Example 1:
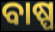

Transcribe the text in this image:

ବାଷ୍ପ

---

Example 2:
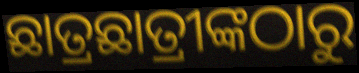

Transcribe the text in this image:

ଛାତ୍ରଛାତ୍ରୀଙ୍କଠାରୁ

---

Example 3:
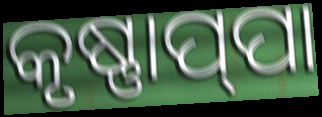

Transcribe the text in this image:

କୃଷ୍ଣାପ୍‌ପା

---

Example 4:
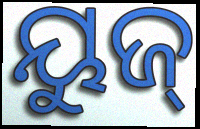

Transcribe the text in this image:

ୟୁଜ୍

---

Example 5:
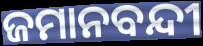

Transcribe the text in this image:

ଜମାନବନ୍ଦୀ